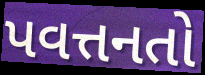
પવત્તનતો